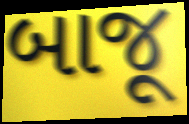
બાજૂ